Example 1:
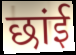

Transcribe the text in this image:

छांई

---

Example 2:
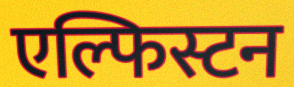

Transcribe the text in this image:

एल्फिस्टन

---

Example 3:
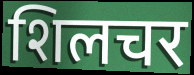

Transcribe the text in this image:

शिलचर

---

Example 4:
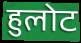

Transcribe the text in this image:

हुलोट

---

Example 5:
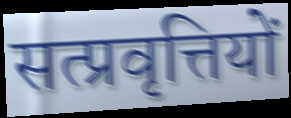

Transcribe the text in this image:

सत्प्रवृत्तियों